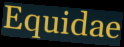
Equidae